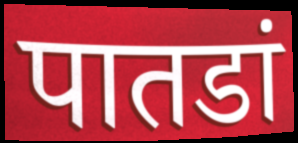
पातडां